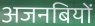
अजनबियों